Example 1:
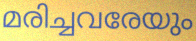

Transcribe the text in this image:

മരിച്ചവരേയും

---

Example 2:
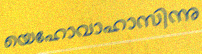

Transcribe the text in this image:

യെഹോവാഹാസിന്നു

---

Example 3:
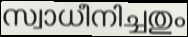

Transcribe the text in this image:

സ്വാധീനിച്ചതും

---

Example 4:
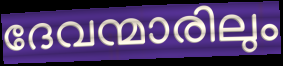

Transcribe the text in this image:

ദേവന്മാരിലും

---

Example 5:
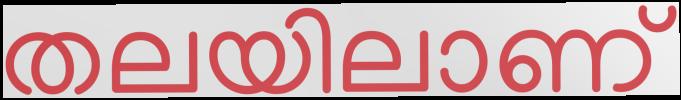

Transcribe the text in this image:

തലയിലാണ്